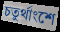
চতুর্থাংশে